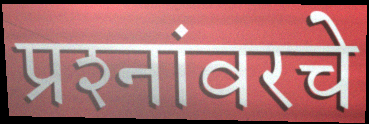
प्रश्नांवरचे